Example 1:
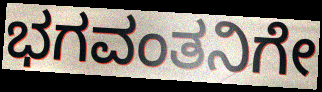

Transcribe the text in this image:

ಭಗವಂತನಿಗೇ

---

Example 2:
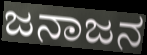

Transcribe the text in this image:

ಜನಾಜನ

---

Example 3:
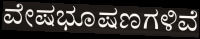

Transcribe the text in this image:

ವೇಷಭೂಷಣಗಳಿವೆ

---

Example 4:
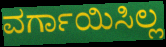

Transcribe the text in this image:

ವರ್ಗಾಯಿಸಿಲ್ಲ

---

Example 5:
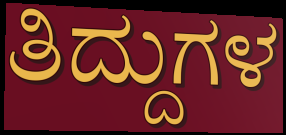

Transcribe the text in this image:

ತಿದ್ದುಗಳ